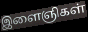
இளைஞிகள்